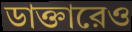
ডাক্তারেও